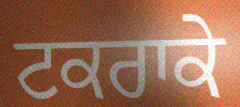
ਟਕਰਾਕੇ